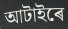
আটাইৰে